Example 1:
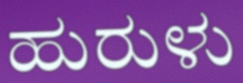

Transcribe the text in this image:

ಹುರುಳು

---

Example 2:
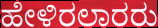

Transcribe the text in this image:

ಹೇಳಿರಲಾರರು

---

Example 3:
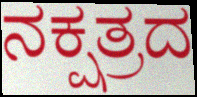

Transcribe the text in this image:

ನಕ್ಷತ್ರದ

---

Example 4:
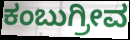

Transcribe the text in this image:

ಕಂಬುಗ್ರೀವ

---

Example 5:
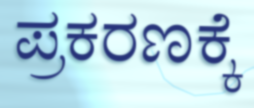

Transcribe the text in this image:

ಪ್ರಕರಣಕ್ಕೆ